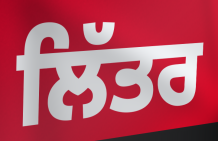
ਲਿੱਤਰ